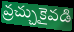
వ్రచ్చుకైవడి